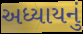
અધ્યાયનું